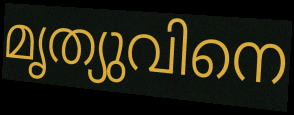
മൃത്യുവിനെ